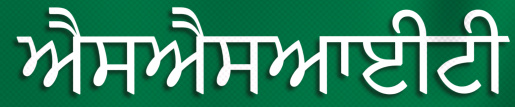
ਐਸਐਸਆਈਟੀ